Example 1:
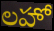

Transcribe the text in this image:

లహో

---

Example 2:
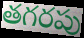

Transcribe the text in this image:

తగరపు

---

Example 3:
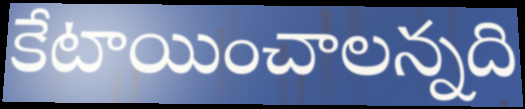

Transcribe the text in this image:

కేటాయించాలన్నది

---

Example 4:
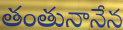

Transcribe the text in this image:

తంతునానేన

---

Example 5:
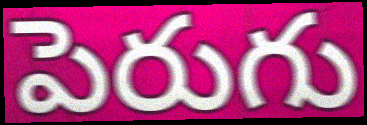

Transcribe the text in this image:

పెరుగు